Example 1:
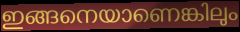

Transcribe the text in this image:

ഇങ്ങനെയാണെങ്കിലും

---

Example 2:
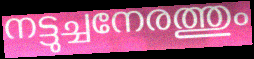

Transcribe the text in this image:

നട്ടുച്ചനേരത്തും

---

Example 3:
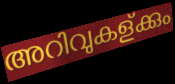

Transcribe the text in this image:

അറിവുകള്ക്കും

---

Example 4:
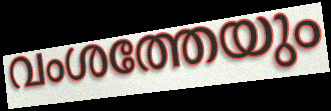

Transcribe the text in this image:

വംശത്തേയും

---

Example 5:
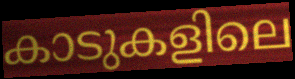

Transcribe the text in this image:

കാടുകളിലെ